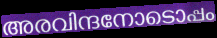
അരവിന്ദനോടൊപ്പം